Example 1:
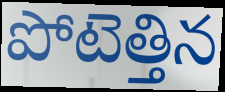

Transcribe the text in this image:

పోటెత్తిన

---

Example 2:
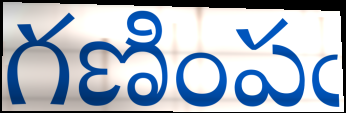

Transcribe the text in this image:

గణింపఁ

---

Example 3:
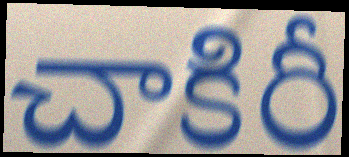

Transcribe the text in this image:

చాకిరీ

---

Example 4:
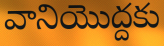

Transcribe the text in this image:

వానియొద్దకు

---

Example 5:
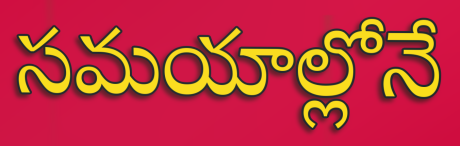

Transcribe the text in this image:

సమయాల్లోనే